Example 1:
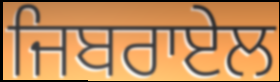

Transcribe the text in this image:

ਜਿਬਰਾਏਲ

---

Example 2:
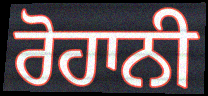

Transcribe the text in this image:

ਰੋਹਾਨੀ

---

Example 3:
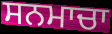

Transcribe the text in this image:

ਸਨਮਾਚਾ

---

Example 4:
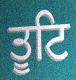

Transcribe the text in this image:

ਤੂਟਿ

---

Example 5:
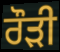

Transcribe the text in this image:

ਰੌੜੀ